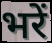
भरें